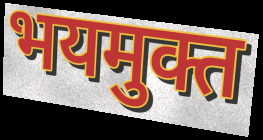
भयमुक्त